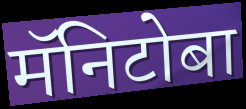
मॅनिटोबा